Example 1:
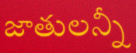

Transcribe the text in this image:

జాతులన్నీ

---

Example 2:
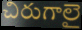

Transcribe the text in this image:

చిరుగాలై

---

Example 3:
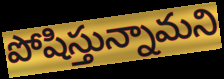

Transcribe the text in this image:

పోషిస్తున్నామని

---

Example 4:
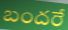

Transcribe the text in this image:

బందరే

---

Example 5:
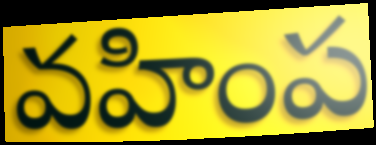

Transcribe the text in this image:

వహింప